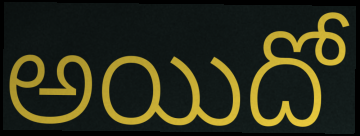
అయిదో